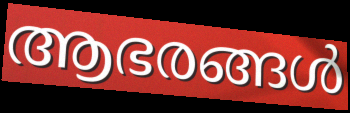
ആഭരങ്ങൾ